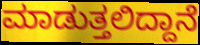
ಮಾಡುತ್ತಲಿದ್ದಾನೆ